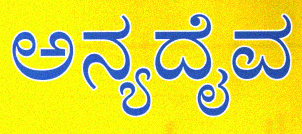
ಅನ್ಯದೈವ